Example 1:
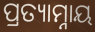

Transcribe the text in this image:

ପ୍ରତ୍ୟାମ୍ନାୟ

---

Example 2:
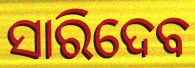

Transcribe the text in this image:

ସାରିଦେବ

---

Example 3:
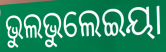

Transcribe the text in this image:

ଭୁଲଭୁଲେଇୟା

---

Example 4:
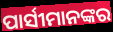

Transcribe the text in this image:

ପାର୍ସୀମାନଙ୍କର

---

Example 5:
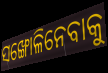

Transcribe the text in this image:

ସଙ୍ଖୋଳିନେବାକୁ